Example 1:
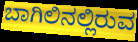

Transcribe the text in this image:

ಬಾಗಿಲಿನಲ್ಲಿರುವ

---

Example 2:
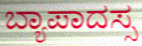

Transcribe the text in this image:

ಬ್ಯಾಪಾದಸ್ಸ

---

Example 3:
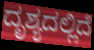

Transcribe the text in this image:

ದೃಶ್ಯದಲ್ಲಿದೆ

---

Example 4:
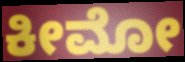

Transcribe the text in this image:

ಕೀಮೋ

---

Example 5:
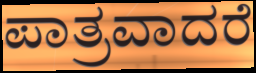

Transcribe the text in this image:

ಪಾತ್ರವಾದರೆ